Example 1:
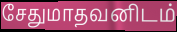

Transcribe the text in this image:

சேதுமாதவனிடம்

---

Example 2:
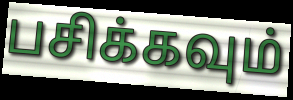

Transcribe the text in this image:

பசிக்கவும்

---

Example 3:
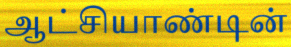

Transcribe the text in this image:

ஆட்சியாண்டின்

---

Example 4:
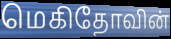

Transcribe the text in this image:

மெகிதோவின்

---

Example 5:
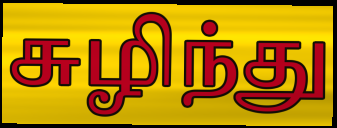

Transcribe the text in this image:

சுழிந்து